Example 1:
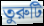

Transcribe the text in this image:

তুরুটি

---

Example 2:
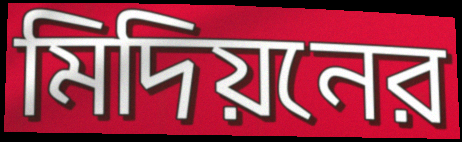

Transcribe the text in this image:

মিদিয়নের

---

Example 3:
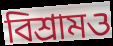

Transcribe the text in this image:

বিশ্রামও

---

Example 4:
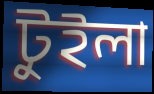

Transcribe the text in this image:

টুইলা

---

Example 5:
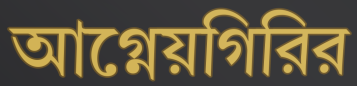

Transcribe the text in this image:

আগ্নেয়গিরির